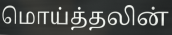
மொய்த்தலின்